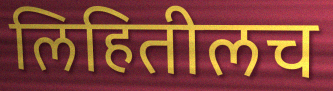
लिहितीलच